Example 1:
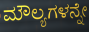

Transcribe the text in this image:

ಮೌಲ್ಯಗಳನ್ನೇ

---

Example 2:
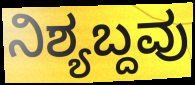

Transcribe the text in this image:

ನಿಶ್ಯಬ್ದವು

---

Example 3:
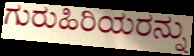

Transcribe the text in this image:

ಗುರುಹಿರಿಯರನ್ನು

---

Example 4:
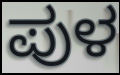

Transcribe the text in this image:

ಪುಳ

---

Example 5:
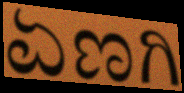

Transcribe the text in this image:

ಏಣಗಿ